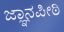
ಜ್ಞಾನಪೀಠಿ